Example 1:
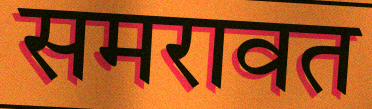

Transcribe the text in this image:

समरावत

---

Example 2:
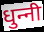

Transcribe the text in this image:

धुन्नी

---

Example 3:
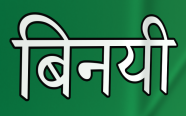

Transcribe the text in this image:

बिनयी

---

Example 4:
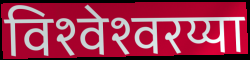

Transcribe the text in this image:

विश्वेश्वरय्या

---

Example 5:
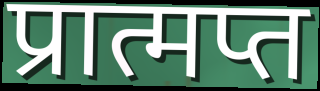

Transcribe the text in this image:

प्रात्मप्त